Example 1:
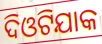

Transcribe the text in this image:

ଦିଓଟିଯାକ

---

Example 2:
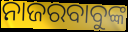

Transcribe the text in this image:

ନାଜରବାବୁଙ୍କ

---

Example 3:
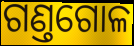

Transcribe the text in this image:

ଗଣ୍ତଗୋଳ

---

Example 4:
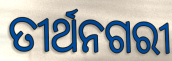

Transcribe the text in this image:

ତୀର୍ଥନଗରୀ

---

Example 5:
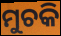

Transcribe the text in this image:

ମୁଚକି